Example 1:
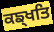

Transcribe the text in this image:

ਕਙ੍ਖਤਿ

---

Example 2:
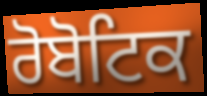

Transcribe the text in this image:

ਰੋਬੋਟਿਕ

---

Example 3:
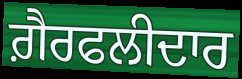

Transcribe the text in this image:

ਗ਼ੈਰਫਲੀਦਾਰ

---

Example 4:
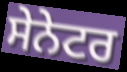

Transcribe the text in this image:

ਸੇਨੇਟਰ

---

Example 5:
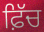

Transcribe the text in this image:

ਫ਼ਿੱਚ